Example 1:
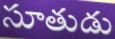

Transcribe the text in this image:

సూతుడు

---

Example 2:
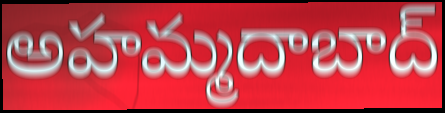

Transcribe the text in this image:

అహమ్మదాబాద్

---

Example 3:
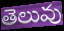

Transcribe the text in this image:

తెలువు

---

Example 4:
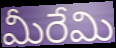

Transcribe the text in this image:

మీరేమి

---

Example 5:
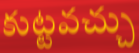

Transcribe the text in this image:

కుట్టవచ్చు